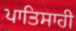
ਪਾਤਿਸਾਹੀ